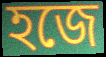
হজে